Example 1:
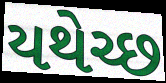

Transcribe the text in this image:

યથેચ્છ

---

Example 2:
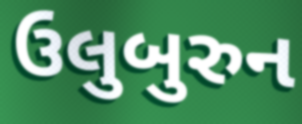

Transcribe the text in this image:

ઉલુબુરુન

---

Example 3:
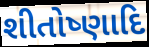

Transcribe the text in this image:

શીતોષ્ણાદિ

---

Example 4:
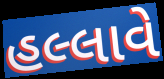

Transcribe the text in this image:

હલ્લાવે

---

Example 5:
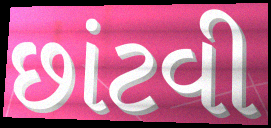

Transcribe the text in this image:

છાંટવી